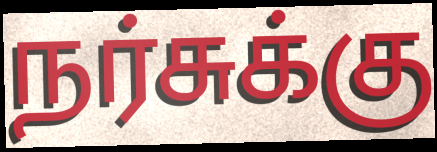
நர்சுக்கு